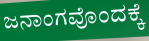
ಜನಾಂಗವೊಂದಕ್ಕೆ